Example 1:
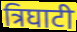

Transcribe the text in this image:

त्रिघाटी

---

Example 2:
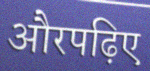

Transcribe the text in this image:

औरपढ़िए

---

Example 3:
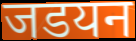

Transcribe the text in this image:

जडयन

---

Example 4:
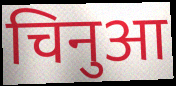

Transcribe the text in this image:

चिनुआ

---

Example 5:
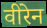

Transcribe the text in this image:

वीरेन